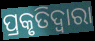
ପ୍ରକୃତିଦ୍ୱାରା